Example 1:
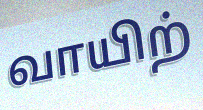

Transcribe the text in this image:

வாயிற்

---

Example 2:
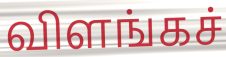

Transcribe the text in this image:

விளங்கச்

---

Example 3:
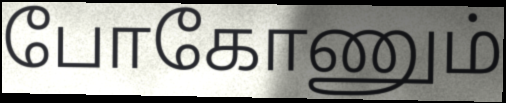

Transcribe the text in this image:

போகோணும்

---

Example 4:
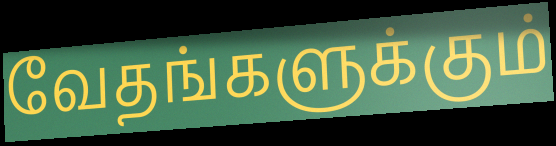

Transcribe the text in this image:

வேதங்களுக்கும்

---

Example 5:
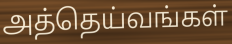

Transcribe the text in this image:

அத்தெய்வங்கள்